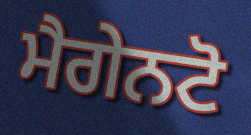
ਮੈਗੇਨਟੋ